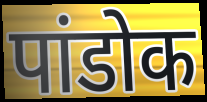
पांडोक